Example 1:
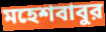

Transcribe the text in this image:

মহেশবাবুর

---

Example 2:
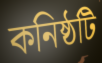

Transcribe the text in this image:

কনিষ্ঠটি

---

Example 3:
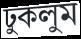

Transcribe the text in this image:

ঢুকলুম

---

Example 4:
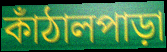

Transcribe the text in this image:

কাঁঠালপাড়া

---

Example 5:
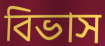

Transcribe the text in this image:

বিভাস